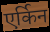
एर्किन